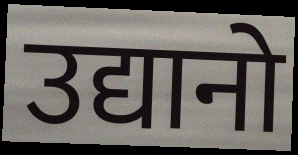
उद्यानो